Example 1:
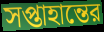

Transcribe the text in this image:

সপ্তাহান্তের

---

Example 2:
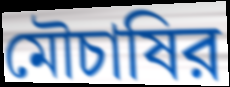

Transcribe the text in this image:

মৌচাষির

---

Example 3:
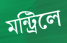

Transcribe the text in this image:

মন্ট্রিলে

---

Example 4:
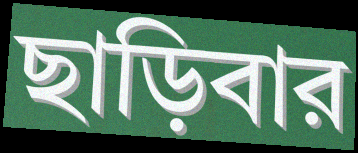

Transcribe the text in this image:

ছাড়িবার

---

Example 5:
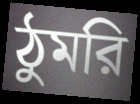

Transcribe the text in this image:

ঠুমরি